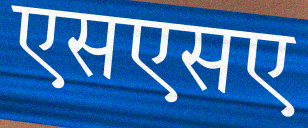
एसएसए